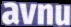
avnu